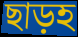
ছাড়হ